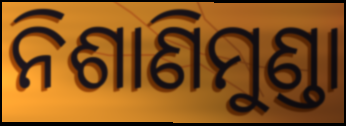
ନିଶାଣିମୁଣ୍ଡା